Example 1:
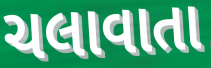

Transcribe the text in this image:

ચલાવાતા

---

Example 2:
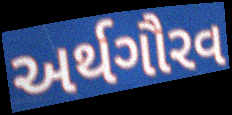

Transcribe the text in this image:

અર્થગૌરવ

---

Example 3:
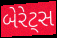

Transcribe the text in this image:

બેરેટ્સ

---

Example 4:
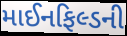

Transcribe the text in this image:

માઈનફિલ્ડની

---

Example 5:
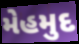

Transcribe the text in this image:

મેહમુદ